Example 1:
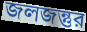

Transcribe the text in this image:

জলজন্তুর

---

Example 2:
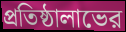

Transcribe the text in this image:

প্রতিষ্ঠালাভের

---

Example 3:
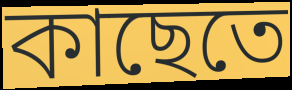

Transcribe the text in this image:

কাছেতে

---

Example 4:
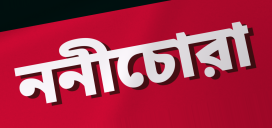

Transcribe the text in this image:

ননীচোরা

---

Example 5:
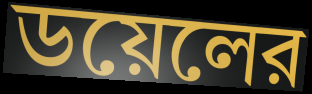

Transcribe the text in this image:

ডয়েলের